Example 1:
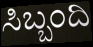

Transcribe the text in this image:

ಸಿಬ್ಬಂದಿ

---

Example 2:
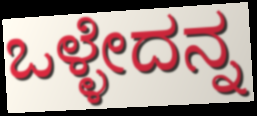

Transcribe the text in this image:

ಒಳ್ಳೇದನ್ನ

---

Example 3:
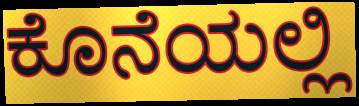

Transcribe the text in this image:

ಕೊನೆಯಲ್ಲಿ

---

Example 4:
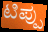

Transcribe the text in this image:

ಟಿಪ್ಪು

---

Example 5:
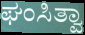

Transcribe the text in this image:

ಘಂಸಿತ್ವಾ